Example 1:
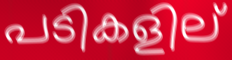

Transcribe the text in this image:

പടികളില്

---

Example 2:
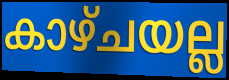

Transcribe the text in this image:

കാഴ്ചയല്ല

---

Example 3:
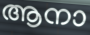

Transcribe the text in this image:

ആനാ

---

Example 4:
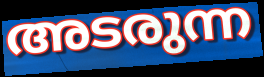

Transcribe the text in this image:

അടരുന്ന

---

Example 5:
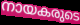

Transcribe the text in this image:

നായകരുടെ